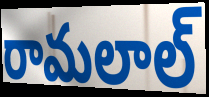
రామలాల్